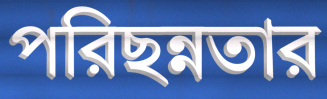
পরিছন্নতার